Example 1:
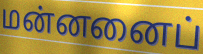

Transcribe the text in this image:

மன்னனைப்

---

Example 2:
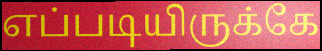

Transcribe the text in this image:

எப்படியிருக்கே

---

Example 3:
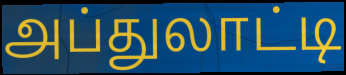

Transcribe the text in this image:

அப்துலாட்டி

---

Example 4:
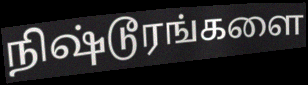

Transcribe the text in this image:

நிஷ்டூரங்களை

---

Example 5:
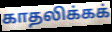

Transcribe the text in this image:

காதலிக்கக்